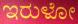
ಇರುಳೋ